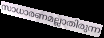
സാധാരണമല്ലാതിരുന്ന